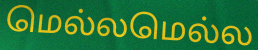
மெல்லமெல்ல